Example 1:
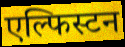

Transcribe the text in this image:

एल्फिस्टन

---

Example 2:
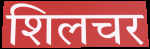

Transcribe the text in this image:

शिलचर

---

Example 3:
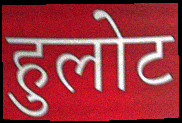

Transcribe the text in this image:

हुलोट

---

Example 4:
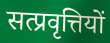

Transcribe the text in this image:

सत्प्रवृत्तियों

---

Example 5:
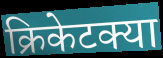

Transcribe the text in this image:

क्रिकेटक्या